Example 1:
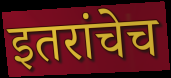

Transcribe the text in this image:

इतरांचेच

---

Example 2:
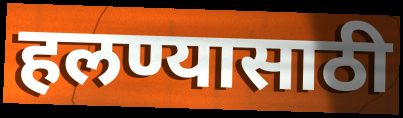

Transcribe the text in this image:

हलण्यासाठी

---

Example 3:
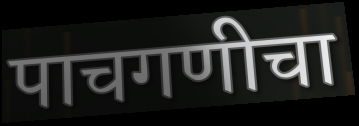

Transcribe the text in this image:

पाचगणीचा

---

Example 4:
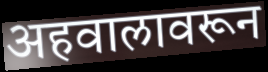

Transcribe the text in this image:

अहवालावरून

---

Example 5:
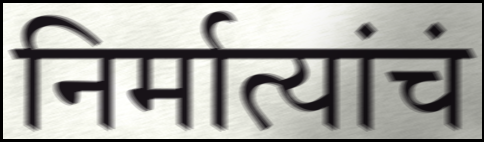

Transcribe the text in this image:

निर्मात्यांचं